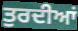
ਤੁਰਦੀਆਂ